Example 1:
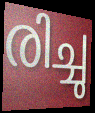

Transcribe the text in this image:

രിച്ചു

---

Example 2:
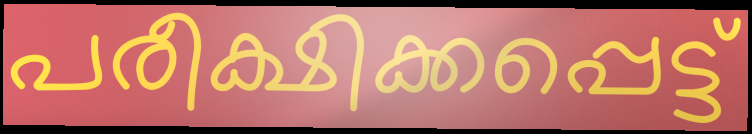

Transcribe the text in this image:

പരീക്ഷിക്കപ്പെട്ട്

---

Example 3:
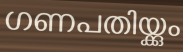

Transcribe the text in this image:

ഗണപതിയ്ക്കും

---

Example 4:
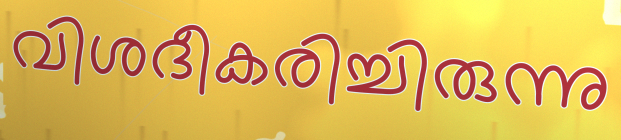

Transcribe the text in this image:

വിശദീകരിച്ചിരുന്നു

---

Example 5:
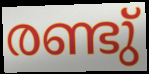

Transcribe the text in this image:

രണ്ടു്